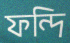
ফন্দি